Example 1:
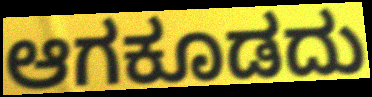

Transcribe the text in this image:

ಆಗಕೂಡದು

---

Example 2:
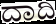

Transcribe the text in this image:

ದಾದಿ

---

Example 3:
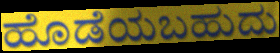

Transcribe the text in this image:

ಹೊಡೆಯಬಹುದು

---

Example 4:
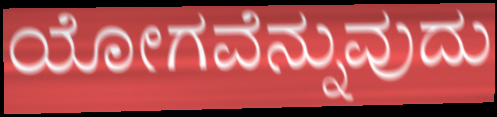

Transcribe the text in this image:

ಯೋಗವೆನ್ನುವುದು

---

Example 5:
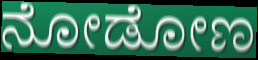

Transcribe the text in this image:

ನೋಡೋಣ